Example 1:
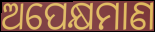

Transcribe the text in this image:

ଅପେକ୍ଷମାଣ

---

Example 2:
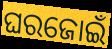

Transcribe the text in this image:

ଘରଜୋଇଁ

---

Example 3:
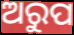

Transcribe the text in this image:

ଅରୁପ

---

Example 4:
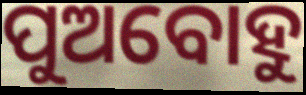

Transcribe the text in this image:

ପୁଅବୋହୁ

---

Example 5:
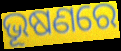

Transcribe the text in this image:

ଭୂଷଣରେ